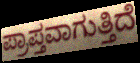
ಪ್ರಾಪ್ತವಾಗುತ್ತಿದೆ